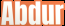
Abdur